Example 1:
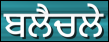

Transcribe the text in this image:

ਬਲੈਚਲੇ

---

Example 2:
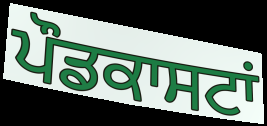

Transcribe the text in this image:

ਪੌਡਕਾਸਟਾਂ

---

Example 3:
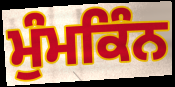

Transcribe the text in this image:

ਮੁੰਮਕਿੰਨ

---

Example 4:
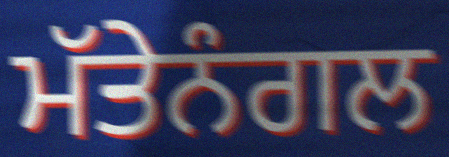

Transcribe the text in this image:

ਮੱਤੇਨੰਗਲ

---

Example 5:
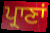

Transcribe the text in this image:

ਪ੍ਰਾਣਾਂ